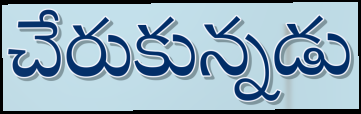
చేరుకున్నడు